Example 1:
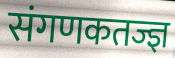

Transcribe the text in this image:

संगणकतज्ज्ञ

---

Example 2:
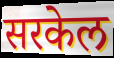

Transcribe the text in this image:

सरकेल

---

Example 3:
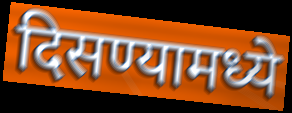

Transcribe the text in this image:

दिसण्यामध्ये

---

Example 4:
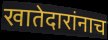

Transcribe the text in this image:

खातेदारांनाच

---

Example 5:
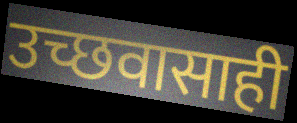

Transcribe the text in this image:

उच्छवासाही